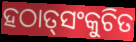
ହଠାତ୍‌ସଂକୁଚିତ